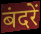
बंदरें